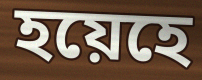
হয়েহে